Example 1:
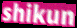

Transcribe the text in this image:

shikun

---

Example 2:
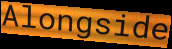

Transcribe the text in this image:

Alongside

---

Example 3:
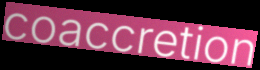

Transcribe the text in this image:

coaccretion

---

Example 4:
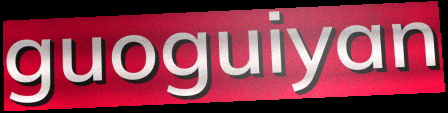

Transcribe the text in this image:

guoguiyan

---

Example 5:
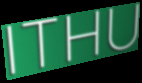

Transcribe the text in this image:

ITHU